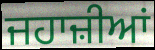
ਜਹਾਜ਼ੀਆਂ